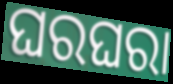
ଘରଘରା